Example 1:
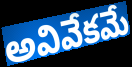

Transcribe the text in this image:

అవివేకమే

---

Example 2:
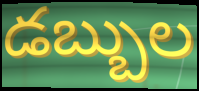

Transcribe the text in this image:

డబ్బుల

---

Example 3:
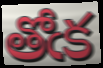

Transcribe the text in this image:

తోఁక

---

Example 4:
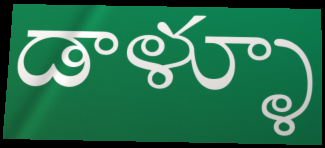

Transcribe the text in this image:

డాళ్ళూ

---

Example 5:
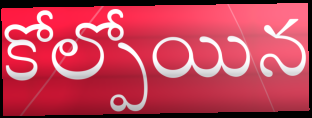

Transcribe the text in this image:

కోల్పోయిన